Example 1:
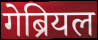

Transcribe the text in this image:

गेब्रियल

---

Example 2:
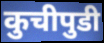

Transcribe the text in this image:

कुचीपुडी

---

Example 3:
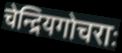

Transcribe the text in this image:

चेन्द्रियगोचराः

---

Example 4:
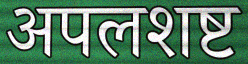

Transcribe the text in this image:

अपलशष्ट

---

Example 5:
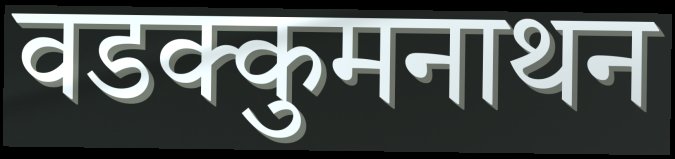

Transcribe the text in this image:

वडक्कुमनाथन